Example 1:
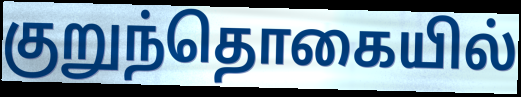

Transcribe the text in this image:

குறுந்தொகையில்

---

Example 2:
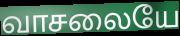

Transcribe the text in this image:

வாசலையே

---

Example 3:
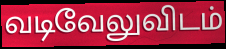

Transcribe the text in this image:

வடிவேலுவிடம்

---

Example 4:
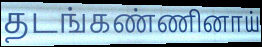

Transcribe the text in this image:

தடங்கண்ணினாய்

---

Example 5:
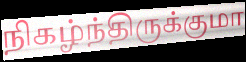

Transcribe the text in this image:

நிகழ்ந்திருக்குமா